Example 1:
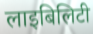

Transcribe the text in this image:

लाइबिलिटी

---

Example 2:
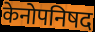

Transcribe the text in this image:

केनोपनिषद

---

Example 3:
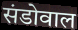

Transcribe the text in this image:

संडोवाल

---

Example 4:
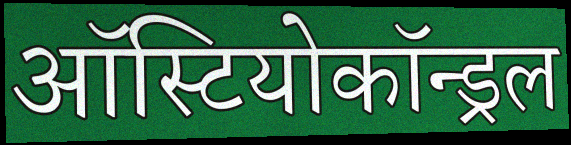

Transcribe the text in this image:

ऑस्टियोकॉन्ड्रल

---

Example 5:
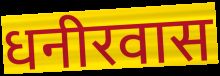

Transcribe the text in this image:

धनीरवास